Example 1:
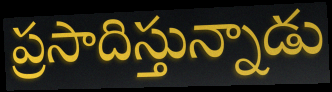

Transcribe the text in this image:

ప్రసాదిస్తున్నాడు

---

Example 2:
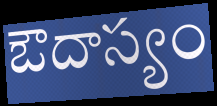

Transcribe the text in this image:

ఔదాస్యం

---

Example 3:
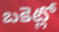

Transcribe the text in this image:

బకెట్లో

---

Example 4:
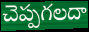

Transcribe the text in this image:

చెప్పగలదా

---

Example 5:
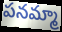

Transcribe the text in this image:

పనమ్మా